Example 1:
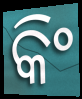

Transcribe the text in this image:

କିଂ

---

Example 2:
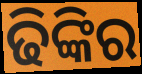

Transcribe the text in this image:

ଢିଙ୍କିର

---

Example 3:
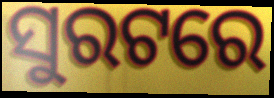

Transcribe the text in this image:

ସୁରଟରେ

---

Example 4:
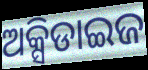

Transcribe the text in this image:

ଅକ୍ସିଡାଇଜ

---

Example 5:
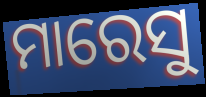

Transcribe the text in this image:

ମାରେସୁ